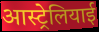
आस्ट्रेलियाई